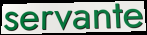
servante